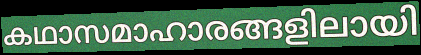
കഥാസമാഹാരങ്ങളിലായി